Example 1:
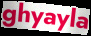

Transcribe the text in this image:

ghyayla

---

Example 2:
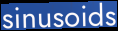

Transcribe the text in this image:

sinusoids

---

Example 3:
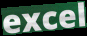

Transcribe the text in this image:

excel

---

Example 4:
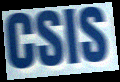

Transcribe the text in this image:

CSIS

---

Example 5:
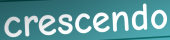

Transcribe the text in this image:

crescendo